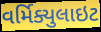
વર્મિક્યુલાઇટ